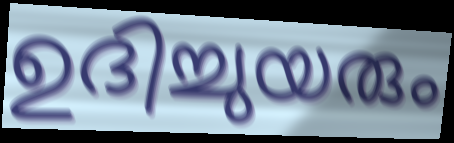
ഉദിച്ചുയരും